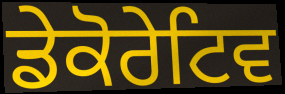
ਡੇਕੋਰੇਟਿਵ